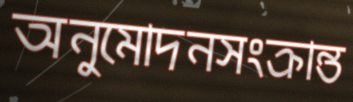
অনুমোদনসংক্রান্ত